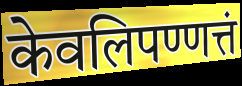
केवलिपण्णत्तं